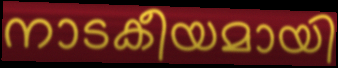
നാടകീയമായി